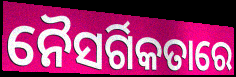
ନୈସର୍ଗିକତାରେ